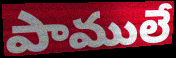
పాములే